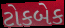
ટોકબેક